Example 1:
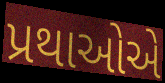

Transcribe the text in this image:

પ્રથાઓએ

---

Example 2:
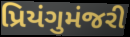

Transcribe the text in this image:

પ્રિયંગુમંજરી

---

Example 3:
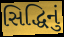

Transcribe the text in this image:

સિદ્ધિનું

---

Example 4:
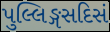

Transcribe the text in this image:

પુલ્લિઙ્ગસદિસં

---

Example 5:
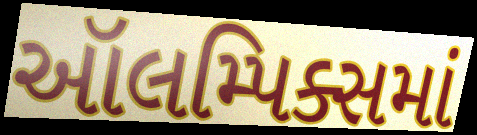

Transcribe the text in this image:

ઑલમ્પિક્સમાં